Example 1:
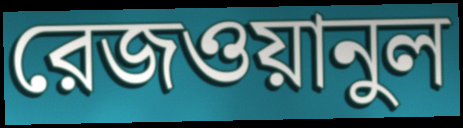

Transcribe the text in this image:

রেজওয়ানুল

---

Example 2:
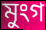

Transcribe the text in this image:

মুংগ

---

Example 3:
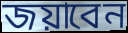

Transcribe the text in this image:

জয়াবেন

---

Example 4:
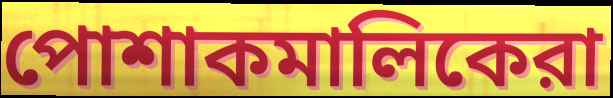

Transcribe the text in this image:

পোশাকমালিকেরা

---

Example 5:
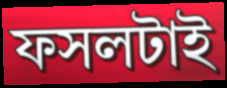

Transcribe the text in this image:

ফসলটাই